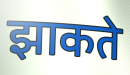
झाकते